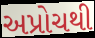
અપ્રોચથી